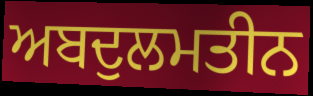
ਅਬਦੁਲਮਤੀਨ